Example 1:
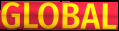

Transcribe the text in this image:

GLOBAL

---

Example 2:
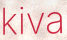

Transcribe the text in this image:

kiva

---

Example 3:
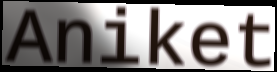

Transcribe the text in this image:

Aniket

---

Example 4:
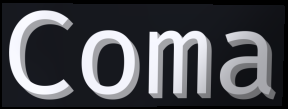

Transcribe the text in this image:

Coma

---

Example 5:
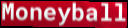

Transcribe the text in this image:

Moneyball